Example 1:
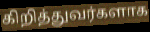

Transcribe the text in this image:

கிறித்துவர்களாக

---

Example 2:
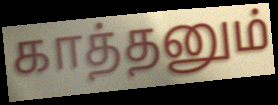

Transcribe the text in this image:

காத்தனும்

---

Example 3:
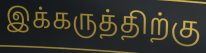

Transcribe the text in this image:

இக்கருத்திற்கு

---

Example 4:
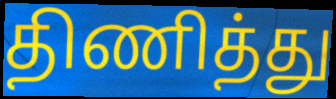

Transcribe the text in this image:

திணித்து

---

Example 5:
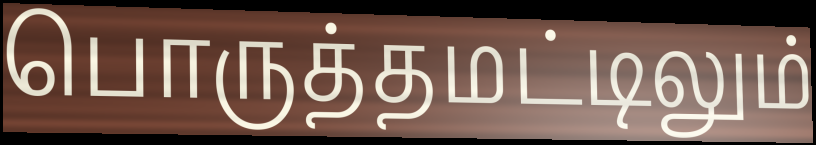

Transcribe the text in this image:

பொருத்தமட்டிலும்